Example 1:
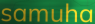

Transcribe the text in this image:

samuha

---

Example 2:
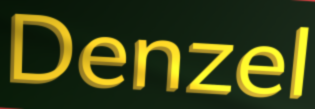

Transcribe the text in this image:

Denzel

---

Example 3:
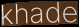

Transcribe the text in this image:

khade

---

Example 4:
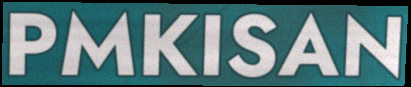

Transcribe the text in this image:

PMKISAN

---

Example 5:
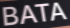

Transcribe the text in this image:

BATA